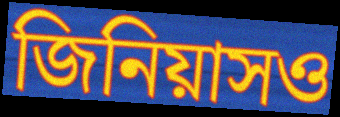
জিনিয়াসও